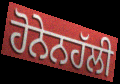
ਹੋਨੇਨਹੱਲੀ